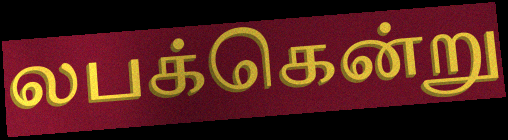
லபக்கென்று